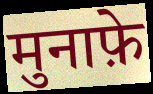
मुनाफ़े